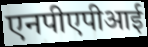
एनपीएपीआई